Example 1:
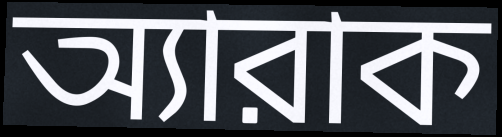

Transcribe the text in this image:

অ্যারাক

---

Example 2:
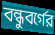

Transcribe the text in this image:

বন্ধুবর্গের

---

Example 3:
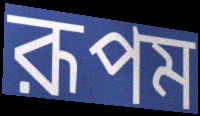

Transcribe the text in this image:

রূপম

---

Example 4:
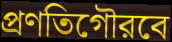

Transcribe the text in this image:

প্রণতিগৌরবে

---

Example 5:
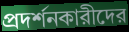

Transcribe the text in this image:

প্রদর্শনকারীদের